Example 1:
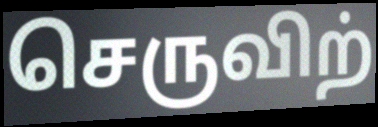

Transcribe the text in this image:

செருவிற்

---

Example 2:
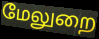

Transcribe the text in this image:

மேலுறை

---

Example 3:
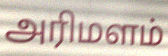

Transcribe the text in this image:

அரிமளம்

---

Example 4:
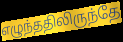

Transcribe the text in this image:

எழுந்ததிலிருந்தே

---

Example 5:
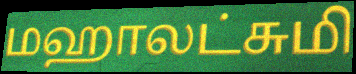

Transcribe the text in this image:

மஹாலட்சுமி